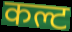
कल्ट